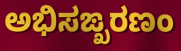
ಅಭಿಸಙ್ಖರಣಂ